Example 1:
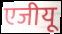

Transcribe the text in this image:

एजीयू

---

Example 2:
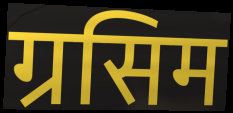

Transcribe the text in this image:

ग्रसिम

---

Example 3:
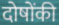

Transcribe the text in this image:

दोषोंकी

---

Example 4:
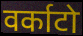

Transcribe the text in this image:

वर्काटो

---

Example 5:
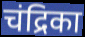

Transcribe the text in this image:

चंद्रिका